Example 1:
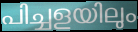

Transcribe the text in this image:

പിച്ചളയിലും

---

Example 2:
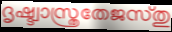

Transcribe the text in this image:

ദൃഷ്ട്വാസ്ത്രതേജസ്തു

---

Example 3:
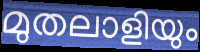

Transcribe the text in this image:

മുതലാളിയും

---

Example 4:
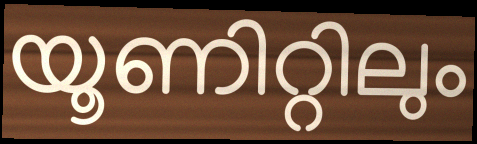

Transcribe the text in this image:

യൂണിറ്റിലും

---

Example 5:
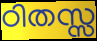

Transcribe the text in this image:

ഠിതസ്സ